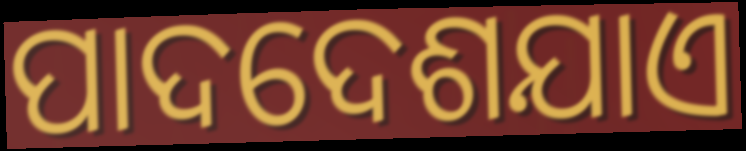
ପାଦଦେଶଯାଏ